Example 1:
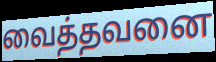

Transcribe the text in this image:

வைத்தவனை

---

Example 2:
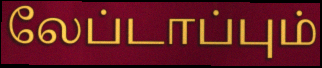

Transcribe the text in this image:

லேப்டாப்பும்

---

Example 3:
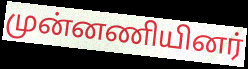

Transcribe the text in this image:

முன்னணியினர்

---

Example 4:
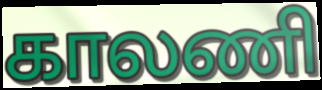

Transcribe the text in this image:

காலணி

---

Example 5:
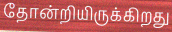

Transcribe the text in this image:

தோன்றியிருக்கிறது